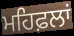
ਮਹਿਫ਼ਲਾਂ